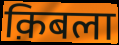
क़िबला